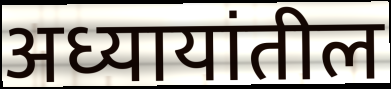
अध्यायांतील